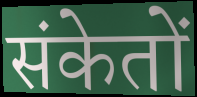
संकेतों